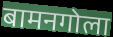
बामनगोला